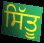
ਸਿੱਤੂ